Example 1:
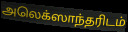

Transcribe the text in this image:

அலெக்ஸாந்தரிடம்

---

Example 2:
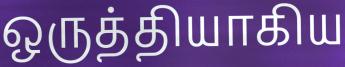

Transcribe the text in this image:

ஒருத்தியாகிய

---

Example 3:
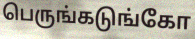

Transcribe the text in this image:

பெருங்கடுங்கோ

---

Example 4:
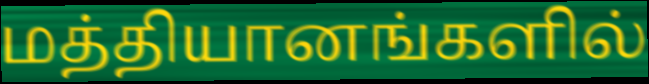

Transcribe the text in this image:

மத்தியானங்களில்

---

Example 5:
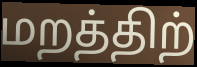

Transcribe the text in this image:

மறத்திற்